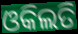
ଓକିଲତି